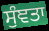
ਸੁੰਞਤਾ